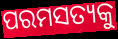
ପରମସତ୍ୟକୁ